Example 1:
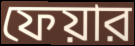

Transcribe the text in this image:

ফেয়ার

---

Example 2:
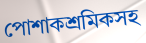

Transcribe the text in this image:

পোশাকশ্রমিকসহ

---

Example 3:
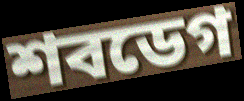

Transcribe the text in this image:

শবডেগ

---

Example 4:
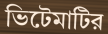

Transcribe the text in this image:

ভিটেমাটির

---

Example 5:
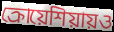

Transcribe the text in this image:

ক্রোয়েশিয়ায়ও